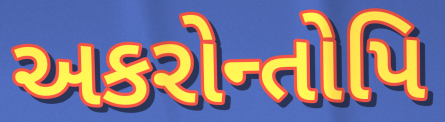
અકરોન્તોપિ